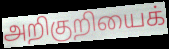
அறிகுறியைக்